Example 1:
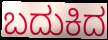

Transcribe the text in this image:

ಬದುಕಿದ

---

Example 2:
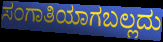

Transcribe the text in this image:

ಸಂಗಾತಿಯಾಗಬಲ್ಲದು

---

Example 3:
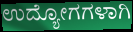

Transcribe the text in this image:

ಉದ್ಯೋಗಗಳಾಗಿ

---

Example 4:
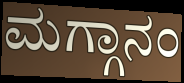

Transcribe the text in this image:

ಮಗ್ಗಾನಂ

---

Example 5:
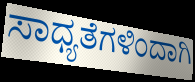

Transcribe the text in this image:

ಸಾಧ್ಯತೆಗಳಿಂದಾಗಿ